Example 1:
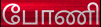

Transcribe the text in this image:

போணி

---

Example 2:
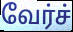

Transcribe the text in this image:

வேர்ச்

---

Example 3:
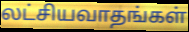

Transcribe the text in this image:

லட்சியவாதங்கள்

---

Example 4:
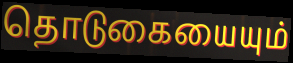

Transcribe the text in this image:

தொடுகையையும்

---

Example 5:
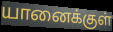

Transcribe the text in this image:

யானைக்குள்